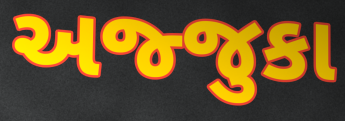
અજ્જુકા